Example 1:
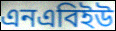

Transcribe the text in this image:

এনএবিইউ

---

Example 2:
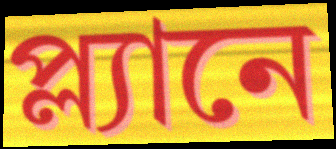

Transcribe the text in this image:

প্ল্যানে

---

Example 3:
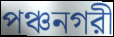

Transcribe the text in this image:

পঞ্চনগরী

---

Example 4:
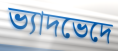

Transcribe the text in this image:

ভ্যাদভেদে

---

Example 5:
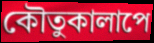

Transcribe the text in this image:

কৌতুকালাপে